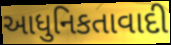
આધુનિકતાવાદી